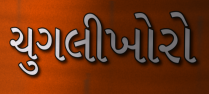
ચુગલીખોરો